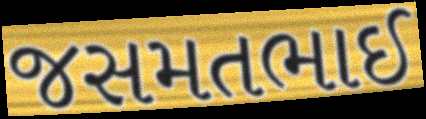
જસમતભાઈ